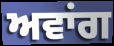
ਅਵਾਂਗ